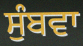
ਸੁੰਬਵਾ